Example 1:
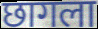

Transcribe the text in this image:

छागला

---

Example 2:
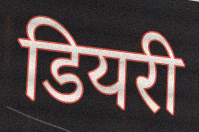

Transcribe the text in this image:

डियरी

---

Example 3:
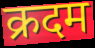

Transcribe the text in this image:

क्रदम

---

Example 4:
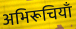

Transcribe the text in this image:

अभिरूचियाँ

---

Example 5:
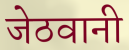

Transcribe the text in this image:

जेठवानी